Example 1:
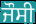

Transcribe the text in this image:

ਜੌਸੀ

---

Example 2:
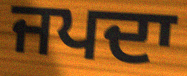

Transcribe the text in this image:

ਜਪਦਾ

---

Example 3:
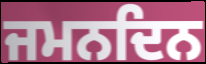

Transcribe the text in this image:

ਜਮਨਦਿਨ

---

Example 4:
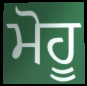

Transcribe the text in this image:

ਮੋਹੂ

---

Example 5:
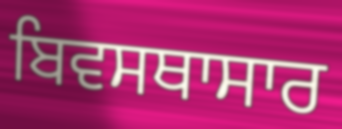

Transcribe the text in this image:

ਬਿਵਸਥਾਸਾਰ